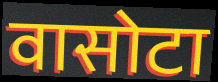
वासोटा